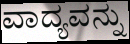
ವಾದ್ಯವನ್ನು